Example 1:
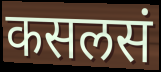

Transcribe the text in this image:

कसलसं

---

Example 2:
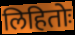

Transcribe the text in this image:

लिहितोः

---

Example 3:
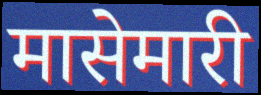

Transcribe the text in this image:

मासेमारी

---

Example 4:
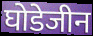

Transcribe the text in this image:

घोडेजीन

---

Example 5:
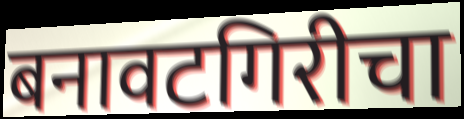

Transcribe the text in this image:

बनावटगिरीचा